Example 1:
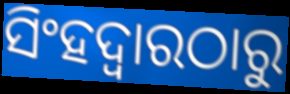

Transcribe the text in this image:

ସିଂହଦ୍ୱାରଠାରୁ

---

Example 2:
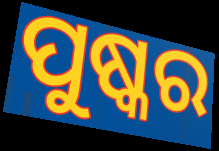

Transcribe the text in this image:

ପୁଷ୍କର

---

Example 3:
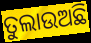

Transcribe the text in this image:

ତୁଲାଉଅଛି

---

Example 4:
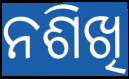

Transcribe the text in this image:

ନଶିଖି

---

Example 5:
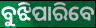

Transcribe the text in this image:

ବୁଝିପାରିବେ